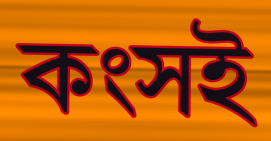
কংসই